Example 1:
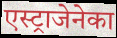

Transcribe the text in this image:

एस्‍ट्राजेनेका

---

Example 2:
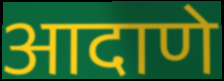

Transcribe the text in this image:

आदाणे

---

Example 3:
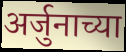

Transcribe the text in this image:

अर्जुनाच्या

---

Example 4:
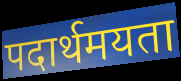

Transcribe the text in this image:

पदार्थमयता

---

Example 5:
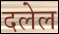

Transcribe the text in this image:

दलेल